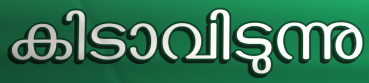
കിടാവിടുന്നു